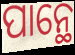
ପାନ୍ଥେ